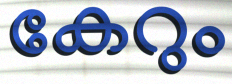
കേറും